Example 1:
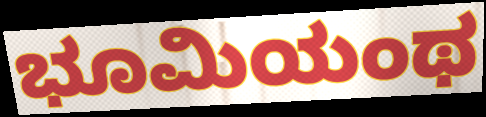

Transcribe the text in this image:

ಭೂಮಿಯಂಥ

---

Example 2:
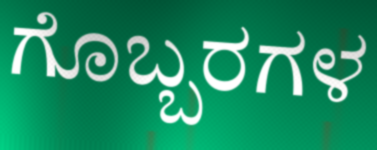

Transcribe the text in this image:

ಗೊಬ್ಬರಗಳ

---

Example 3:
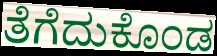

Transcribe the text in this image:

ತೆಗೆದುಕೊಂಡ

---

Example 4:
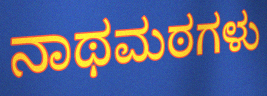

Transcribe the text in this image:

ನಾಥಮಠಗಳು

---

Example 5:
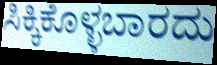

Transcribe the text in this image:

ಸಿಕ್ಕಿಕೊಳ್ಳಬಾರದು